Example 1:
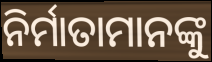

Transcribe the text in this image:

ନିର୍ମାତାମାନଙ୍କୁ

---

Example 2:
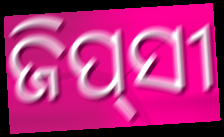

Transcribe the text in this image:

ଜିପ୍‍ସୀ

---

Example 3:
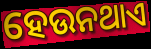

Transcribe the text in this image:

ହେଉନଥାଏ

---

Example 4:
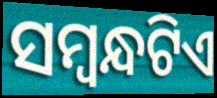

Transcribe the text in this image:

ସମ୍ବନ୍ଧଟିଏ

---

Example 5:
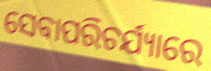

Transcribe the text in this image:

ସେବାପରିଚର୍ଯ୍ୟାରେ